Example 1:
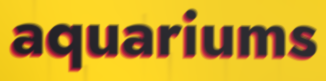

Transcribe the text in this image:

aquariums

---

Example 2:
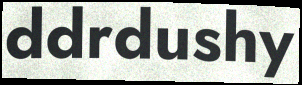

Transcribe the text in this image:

ddrdushy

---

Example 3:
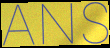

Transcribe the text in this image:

ANS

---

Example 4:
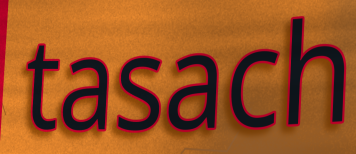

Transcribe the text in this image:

tasach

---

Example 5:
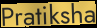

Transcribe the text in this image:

Pratiksha